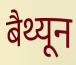
बैथ्यून